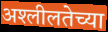
अश्‍लीलतेच्या